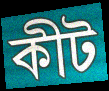
কীট